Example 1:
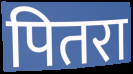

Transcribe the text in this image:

पितरा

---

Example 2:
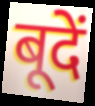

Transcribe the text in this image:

बूदें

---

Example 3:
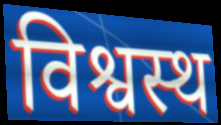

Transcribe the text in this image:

विश्वस्थ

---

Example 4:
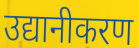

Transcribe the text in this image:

उद्यानीकरण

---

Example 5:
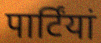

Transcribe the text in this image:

पार्टिंयां